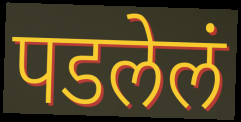
पडलेलं